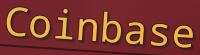
Coinbase